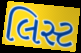
લિસ્ટ